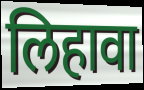
लिहावा